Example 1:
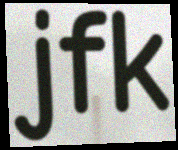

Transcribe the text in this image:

jfk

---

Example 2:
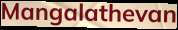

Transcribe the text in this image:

Mangalathevan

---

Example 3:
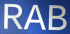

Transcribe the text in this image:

RAB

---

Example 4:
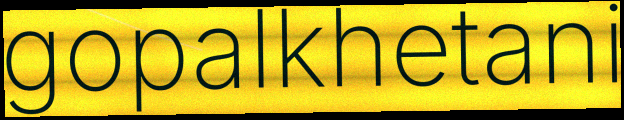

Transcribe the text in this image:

gopalkhetani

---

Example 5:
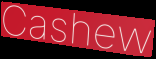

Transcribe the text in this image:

Cashew